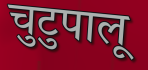
चुटुपालू